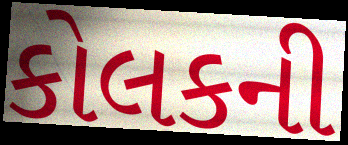
કોલકની